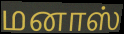
மனாஸ்